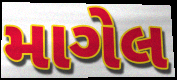
માગેલ